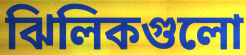
ঝিলিকগুলো